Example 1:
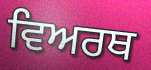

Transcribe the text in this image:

ਵਿਅਰਥ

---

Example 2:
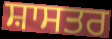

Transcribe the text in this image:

ਸ਼ਾਸਤਰ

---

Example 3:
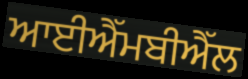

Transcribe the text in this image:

ਆਈਐੱਮਬੀਐੱਲ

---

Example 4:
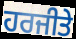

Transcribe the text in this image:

ਹਰਜੀਤੇ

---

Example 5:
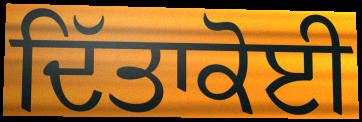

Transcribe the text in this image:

ਦਿੱਤਾਕੋਈ